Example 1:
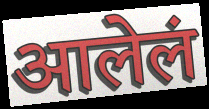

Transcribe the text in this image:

आलेलं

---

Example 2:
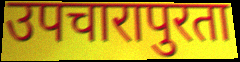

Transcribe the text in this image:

उपचारापुरता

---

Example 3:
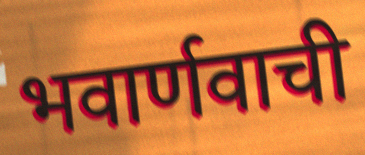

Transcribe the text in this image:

भवार्णवाची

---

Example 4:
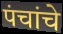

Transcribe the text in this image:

पंचांचे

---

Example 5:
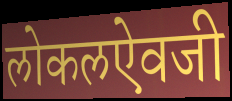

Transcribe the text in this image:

लोकलऐवजी